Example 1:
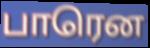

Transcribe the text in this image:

பாரென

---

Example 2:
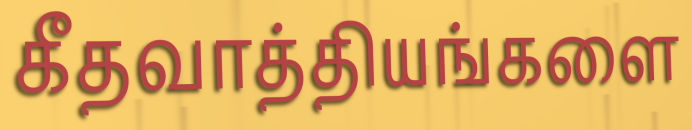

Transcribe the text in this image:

கீதவாத்தியங்களை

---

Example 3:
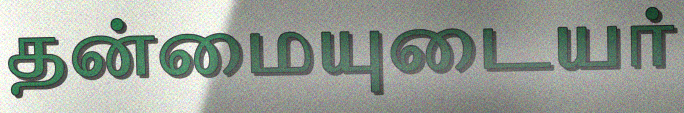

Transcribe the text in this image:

தன்மையுடையர்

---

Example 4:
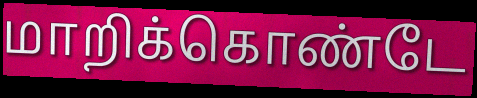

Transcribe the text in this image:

மாறிக்கொண்டே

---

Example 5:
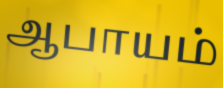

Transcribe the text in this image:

ஆபாயம்